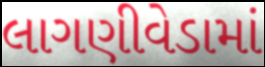
લાગણીવેડામાં